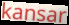
kansar